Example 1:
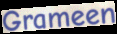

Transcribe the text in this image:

Grameen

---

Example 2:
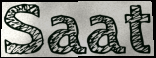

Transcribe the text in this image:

Saat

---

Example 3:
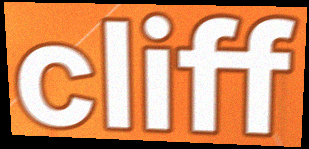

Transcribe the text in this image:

cliff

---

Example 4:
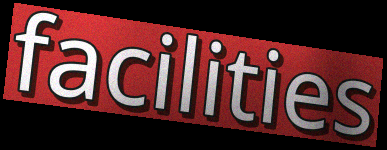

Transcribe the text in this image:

facilities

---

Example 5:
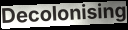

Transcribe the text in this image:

Decolonising